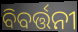
ବିବର୍ତ୍ତନୀ